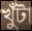
খুঁটা